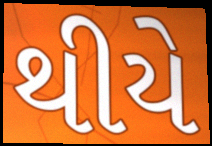
થીયે